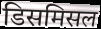
डिसमिसल